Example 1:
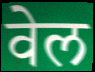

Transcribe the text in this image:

वेल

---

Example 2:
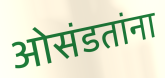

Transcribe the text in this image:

ओसंडतांना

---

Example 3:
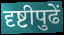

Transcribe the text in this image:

दृष्टीपुढें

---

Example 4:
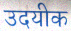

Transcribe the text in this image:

उदयीक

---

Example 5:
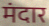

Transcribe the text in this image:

मंदार